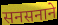
सनसनाने